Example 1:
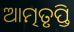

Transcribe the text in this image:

ଆତ୍ମତୃପ୍ତି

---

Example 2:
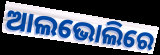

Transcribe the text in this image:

ଆଲଭୋଲିରେ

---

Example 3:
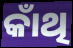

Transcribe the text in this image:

କାଁଥି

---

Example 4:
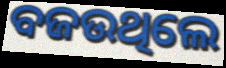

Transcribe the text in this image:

ବଜଉଥିଲେ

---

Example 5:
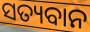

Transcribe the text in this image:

ସତ୍ୟବାନ